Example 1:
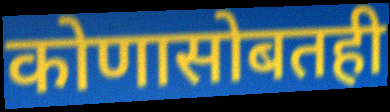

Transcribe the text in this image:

कोणासोबतही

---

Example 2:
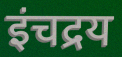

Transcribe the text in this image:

इंचद्रय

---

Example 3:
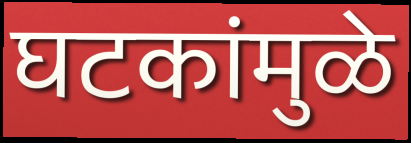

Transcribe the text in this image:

घटकांमुळे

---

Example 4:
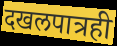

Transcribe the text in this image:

दखलपात्रही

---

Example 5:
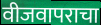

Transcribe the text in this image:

वीजवापराचा